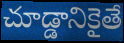
చూడ్డానికైతే